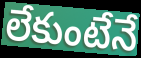
లేకుంటేనే